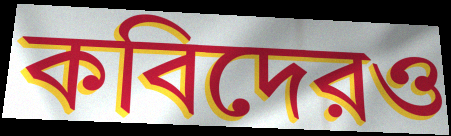
কবিদেরও